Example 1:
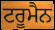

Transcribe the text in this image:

ਟਰੂਮੈਨ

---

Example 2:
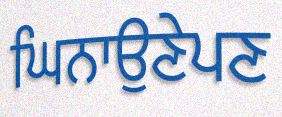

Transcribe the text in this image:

ਘਿਨਾਉਣੇਪਣ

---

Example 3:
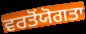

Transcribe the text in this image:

ਵਰਤੋਂਯੋਗਤਾ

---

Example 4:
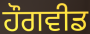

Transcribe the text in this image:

ਹੌਗਵੀਡ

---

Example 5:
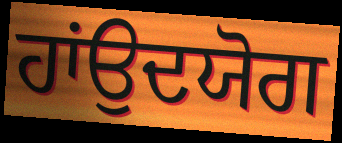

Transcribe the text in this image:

ਹਾਂਉਦਯੋਗ